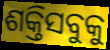
ଶକ୍ତିସବୁକୁ